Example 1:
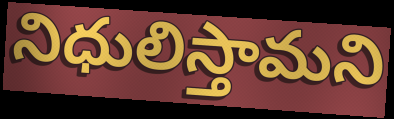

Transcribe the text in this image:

నిధులిస్తామని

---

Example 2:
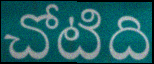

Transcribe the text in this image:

చోటిది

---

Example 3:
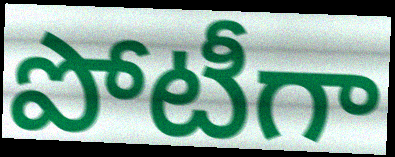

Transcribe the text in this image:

పోటీగా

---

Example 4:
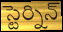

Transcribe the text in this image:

స్టెర్నిన్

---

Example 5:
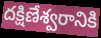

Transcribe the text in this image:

దక్షిణేశ్వరానికి